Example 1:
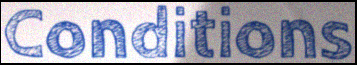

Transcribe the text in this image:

Conditions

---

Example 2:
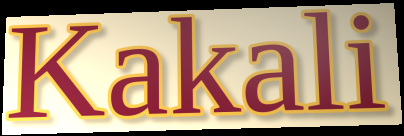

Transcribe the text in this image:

Kakali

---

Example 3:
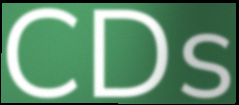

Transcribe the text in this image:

CDs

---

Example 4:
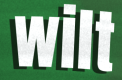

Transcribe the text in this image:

wilt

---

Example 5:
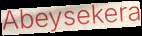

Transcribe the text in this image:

Abeysekera